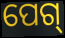
ପେଗ୍